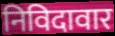
निविदावार